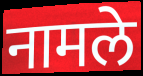
नामले